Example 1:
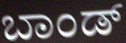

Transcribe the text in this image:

ಬಾಂಡ್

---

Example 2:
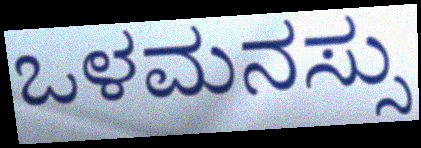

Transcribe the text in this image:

ಒಳಮನಸ್ಸು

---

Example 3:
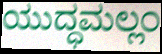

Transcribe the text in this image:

ಯುದ್ಧಮಲ್ಲಂ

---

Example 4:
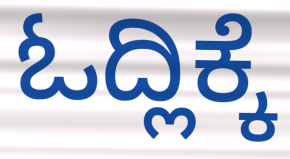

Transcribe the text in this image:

ಓದ್ಲಿಕ್ಕೆ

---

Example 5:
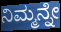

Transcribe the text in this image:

ನಿಮ್ಮನ್ನೇ